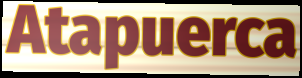
Atapuerca